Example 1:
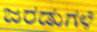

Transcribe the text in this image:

ಜರಡುಗಳೆ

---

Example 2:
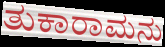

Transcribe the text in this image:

ತುಕಾರಾಮನು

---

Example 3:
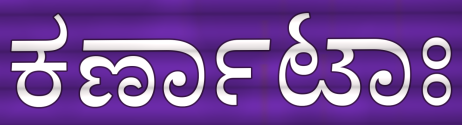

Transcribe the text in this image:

ಕರ್ಣಾಟಾಃ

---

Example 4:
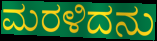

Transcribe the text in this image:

ಮರಳಿದನು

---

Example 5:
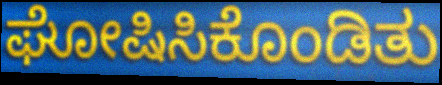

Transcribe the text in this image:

ಘೋಷಿಸಿಕೊಂಡಿತು